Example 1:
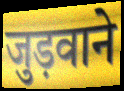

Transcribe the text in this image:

जुड़वाने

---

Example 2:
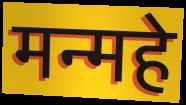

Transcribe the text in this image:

मन्महे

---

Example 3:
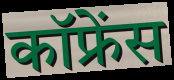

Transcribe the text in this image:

कॉफ्रेंस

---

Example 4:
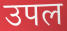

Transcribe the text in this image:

उपल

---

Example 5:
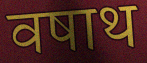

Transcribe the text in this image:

वषाथ